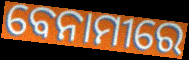
ବେନାମୀରେ